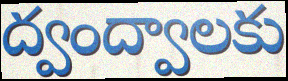
ద్వంద్వాలకు